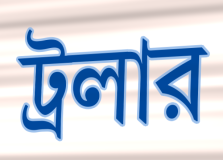
ট্রলার